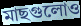
মাছগুলোও